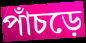
পাঁচড়ে